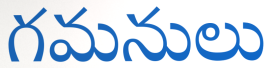
గమనులు